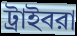
ট্রাইবরা